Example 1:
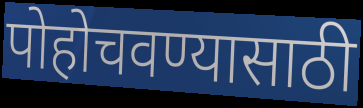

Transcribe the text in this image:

पोहोचवण्यासाठी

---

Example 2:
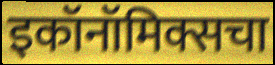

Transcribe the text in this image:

इकॉनॉमिक्सचा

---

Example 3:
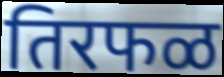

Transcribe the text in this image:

तिरफळ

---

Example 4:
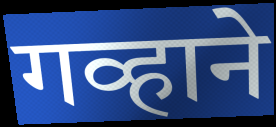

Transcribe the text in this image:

गव्हाने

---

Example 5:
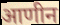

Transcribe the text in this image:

आणीन